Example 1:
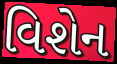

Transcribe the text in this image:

વિશેન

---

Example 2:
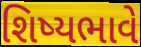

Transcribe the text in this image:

શિષ્યભાવે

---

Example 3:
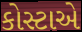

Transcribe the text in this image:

કોસ્ટાએ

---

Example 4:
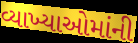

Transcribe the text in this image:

વ્યાખ્યાઓમાંની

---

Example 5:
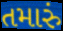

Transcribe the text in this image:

તમારું